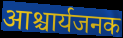
आश्चार्यजनक